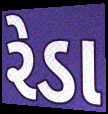
રેડા